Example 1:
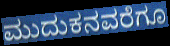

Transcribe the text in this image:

ಮುದುಕನವರೆಗೂ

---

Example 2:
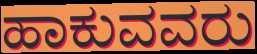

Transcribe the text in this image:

ಹಾಕುವವರು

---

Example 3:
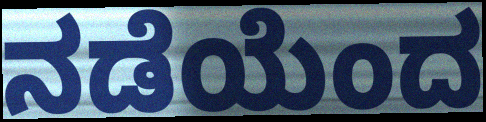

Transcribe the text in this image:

ನಡೆಯೆಂದ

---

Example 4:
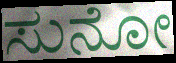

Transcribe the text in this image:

ಸುನೋ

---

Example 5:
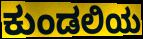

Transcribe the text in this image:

ಕುಂಡಲಿಯ